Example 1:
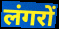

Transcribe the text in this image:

लंगरों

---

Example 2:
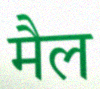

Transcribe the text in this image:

मैल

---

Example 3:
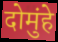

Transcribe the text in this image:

दोमुंहे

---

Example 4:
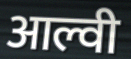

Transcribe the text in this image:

आल्वी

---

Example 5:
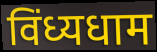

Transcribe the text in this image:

विंध्यधाम